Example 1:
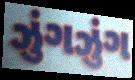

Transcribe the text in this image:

ઝુંગઝુંગ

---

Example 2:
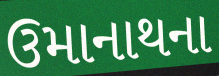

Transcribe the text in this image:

ઉમાનાથના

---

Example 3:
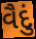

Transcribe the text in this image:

વૈદું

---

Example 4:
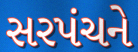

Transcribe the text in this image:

સરપંચને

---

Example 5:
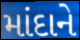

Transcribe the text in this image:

માંદાને